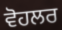
ਵੋਹਲਰ